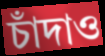
চাঁদাও